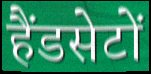
हैंडसेटों